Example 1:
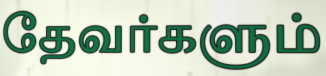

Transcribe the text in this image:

தேவர்களும்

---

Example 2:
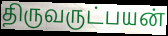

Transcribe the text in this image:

திருவருட்பயன்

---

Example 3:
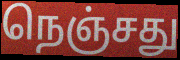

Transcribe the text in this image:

நெஞ்சது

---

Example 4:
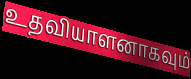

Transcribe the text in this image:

உதவியாளனாகவும்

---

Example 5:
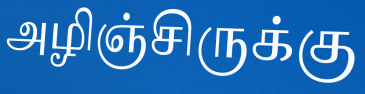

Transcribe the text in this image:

அழிஞ்சிருக்கு